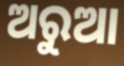
ଅରୁଆ